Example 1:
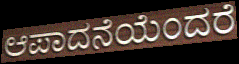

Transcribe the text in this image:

ಆಪಾದನೆಯೆಂದರೆ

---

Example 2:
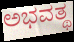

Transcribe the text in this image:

ಅಭವತ್ಥ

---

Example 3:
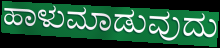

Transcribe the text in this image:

ಹಾಳುಮಾಡುವುದು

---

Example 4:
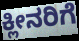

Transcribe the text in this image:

ಕ್ಲೀನರಿಗೆ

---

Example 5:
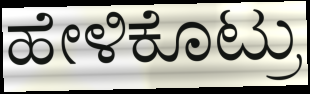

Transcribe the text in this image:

ಹೇಳಿಕೊಟ್ರು